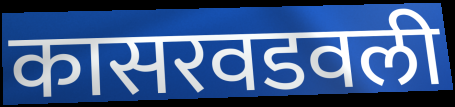
कासरवडवली